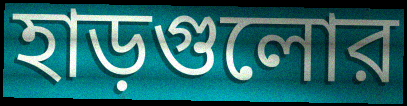
হাড়গুলোর